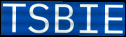
TSBIE